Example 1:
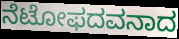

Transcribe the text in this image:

ನೆಟೋಫದವನಾದ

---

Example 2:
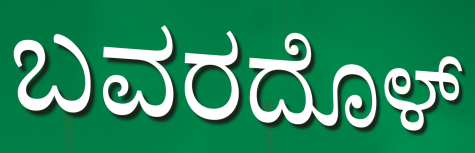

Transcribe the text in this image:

ಬವರದೊಳ್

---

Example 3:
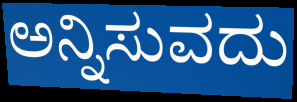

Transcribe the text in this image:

ಅನ್ನಿಸುವದು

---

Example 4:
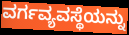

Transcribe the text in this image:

ವರ್ಗವ್ಯವಸ್ಥೆಯನ್ನು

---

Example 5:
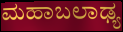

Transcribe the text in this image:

ಮಹಾಬಲಾಢ್ಯ